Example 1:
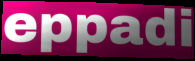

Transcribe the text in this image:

eppadi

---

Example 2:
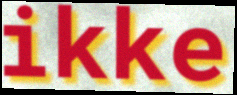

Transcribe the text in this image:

ikke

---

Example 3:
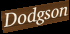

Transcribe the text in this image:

Dodgson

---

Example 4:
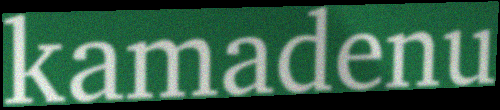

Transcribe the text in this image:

kamadenu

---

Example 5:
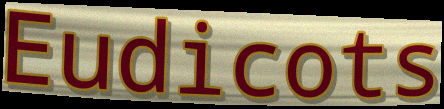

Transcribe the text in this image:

Eudicots